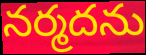
నర్మదను